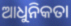
ଆଧୁନିକତା